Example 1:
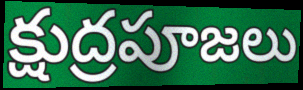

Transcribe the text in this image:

క్షుద్రపూజలు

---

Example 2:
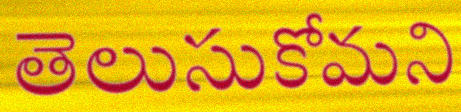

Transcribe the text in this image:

తెలుసుకోమని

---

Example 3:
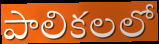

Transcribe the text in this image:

పాలికలలో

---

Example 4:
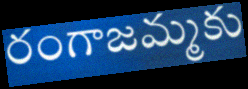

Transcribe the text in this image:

రంగాజమ్మకు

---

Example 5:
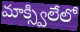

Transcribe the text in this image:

మాక్స్విలేలో